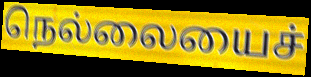
நெல்லையைச்